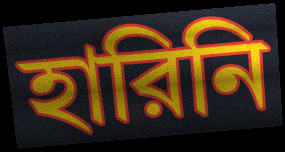
হারিনি